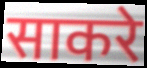
साकरे